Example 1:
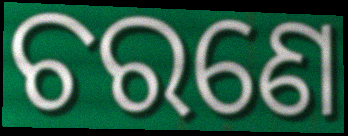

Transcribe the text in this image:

ଚରଣେ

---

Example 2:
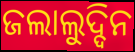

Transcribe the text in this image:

ଜଲାଲୁଦ୍ଦିନ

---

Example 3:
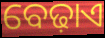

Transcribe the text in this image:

ବେଢ଼ାଏ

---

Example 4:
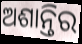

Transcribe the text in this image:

ଅଶାନ୍ତିର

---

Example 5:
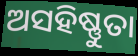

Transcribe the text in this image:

ଅସହିଷ୍ଣୁତା